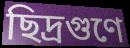
ছিদ্রগুণে